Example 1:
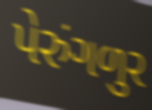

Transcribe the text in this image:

પેરુંગળુર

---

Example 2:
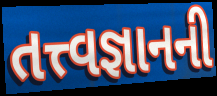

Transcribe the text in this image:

તત્ત્વજ્ઞાનની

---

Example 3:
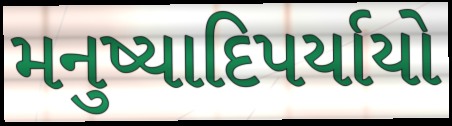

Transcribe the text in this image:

મનુષ્યાદિપર્યાયો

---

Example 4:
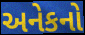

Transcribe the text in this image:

અનેકનો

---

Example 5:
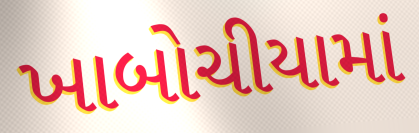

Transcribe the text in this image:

ખાબોચીયામાં